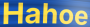
Hahoe